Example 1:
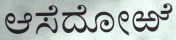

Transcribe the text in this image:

ಆಸೆದೋಱೆ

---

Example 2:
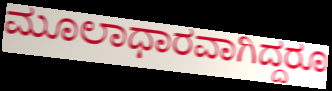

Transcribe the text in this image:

ಮೂಲಾಧಾರವಾಗಿದ್ದರೂ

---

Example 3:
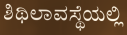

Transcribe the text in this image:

ಶಿಥಿಲಾವಸ್ಥೆಯಲ್ಲಿ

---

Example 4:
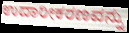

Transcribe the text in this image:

ಉದಾರೀಕರಣವನ್ನು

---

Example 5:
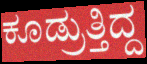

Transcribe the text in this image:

ಕೂಡ್ರುತ್ತಿದ್ದ